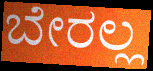
ಬೇರಲ್ಲ